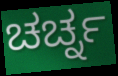
ಚರ್ಚ್ನ